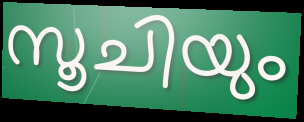
സൂചിയും